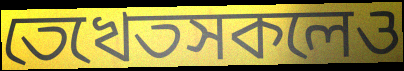
তেখেতসকলেও